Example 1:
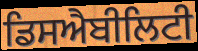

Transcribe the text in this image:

ਡਿਸਐਬੀਲਿਟੀ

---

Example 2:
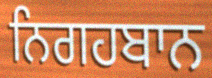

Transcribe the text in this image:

ਨਿਗਹਬਾਨ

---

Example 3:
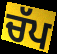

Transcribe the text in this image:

ਚੱਪ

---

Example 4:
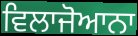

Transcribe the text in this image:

ਵਿਲਾਜੋਆਨਾ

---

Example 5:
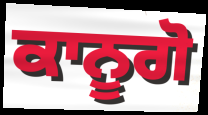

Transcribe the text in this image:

ਕਾਨੂਗੋ